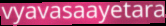
vyavasaayetara